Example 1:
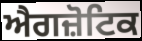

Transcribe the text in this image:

ਐਗਜ਼ੋਟਿਕ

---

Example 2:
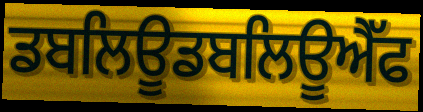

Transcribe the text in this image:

ਡਬਲਿਊਡਬਲਿਊਐੱਫ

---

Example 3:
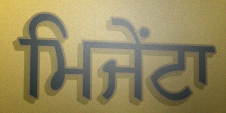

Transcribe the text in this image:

ਮਿਜੇਂਟਾ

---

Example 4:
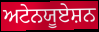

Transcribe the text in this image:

ਅਟੇਨਯੂਏਸ਼ਨ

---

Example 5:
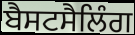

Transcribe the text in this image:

ਬੈਸਟਸੈਲਿੰਗ